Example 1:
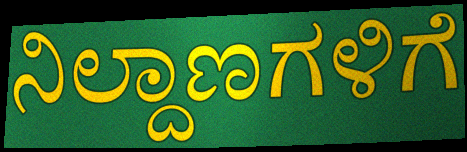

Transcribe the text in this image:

ನಿಲ್ದಾಣಗಳಿಗೆ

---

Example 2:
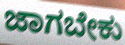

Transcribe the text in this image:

ಜಾಗಬೇಕು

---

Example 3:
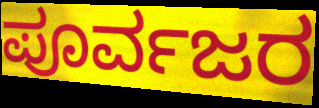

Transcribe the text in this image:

ಪೂರ್ವಜರ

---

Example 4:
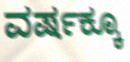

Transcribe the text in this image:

ವರ್ಷಕ್ಕೂ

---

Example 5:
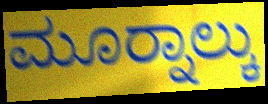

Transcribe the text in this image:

ಮೂರ‍್ನಾಲ್ಕು